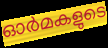
ഓർമകളുടെ